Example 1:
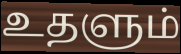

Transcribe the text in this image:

உதளும்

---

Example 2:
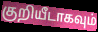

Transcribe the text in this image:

குறியீடாகவும்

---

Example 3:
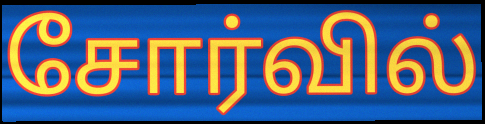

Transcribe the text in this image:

சோர்வில்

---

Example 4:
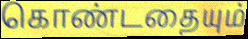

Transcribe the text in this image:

கொண்டதையும்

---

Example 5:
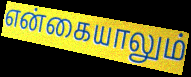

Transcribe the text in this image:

என்கையாலும்